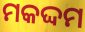
ମକଦ୍ଦମ